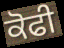
ਕੋਫੀ